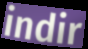
indir